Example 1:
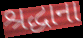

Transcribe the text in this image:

શ્રદ્ધાના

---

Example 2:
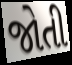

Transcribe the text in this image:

જોતી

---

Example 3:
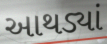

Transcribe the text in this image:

આથડ્યાં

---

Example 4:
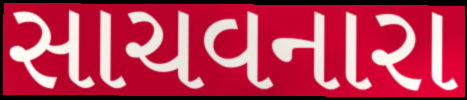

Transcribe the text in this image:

સાચવનારા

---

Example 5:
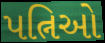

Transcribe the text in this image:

પત્નિઓ